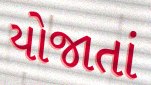
યોજાતાં